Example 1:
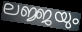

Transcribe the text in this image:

ലജ്ജയും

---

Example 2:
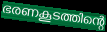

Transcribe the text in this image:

ഭരണകൂടത്തിന്റെ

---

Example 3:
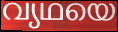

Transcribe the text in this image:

വ്യഥയെ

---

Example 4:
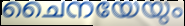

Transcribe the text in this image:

ചൈനയേയും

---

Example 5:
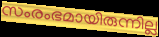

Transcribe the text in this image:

സംരംഭമായിരുന്നില്ല